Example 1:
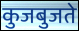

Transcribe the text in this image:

कुजबुजते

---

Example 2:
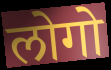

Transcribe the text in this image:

लोगो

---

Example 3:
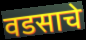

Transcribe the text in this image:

वडसाचे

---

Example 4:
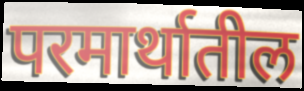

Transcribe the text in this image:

परमार्थातील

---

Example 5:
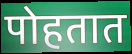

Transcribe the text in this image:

पोहतात